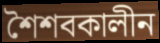
শৈশবকালীন